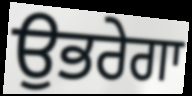
ਉਭਰੇਗਾ